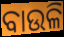
ବାଉଳି